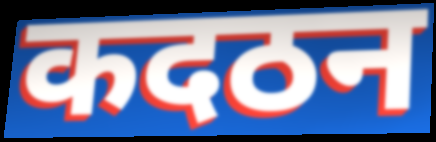
कदठन